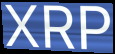
XRP